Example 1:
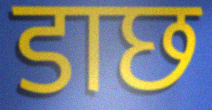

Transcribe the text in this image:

डाछ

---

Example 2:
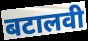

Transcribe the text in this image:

बटालवी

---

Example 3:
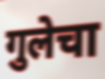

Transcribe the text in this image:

गुलेचा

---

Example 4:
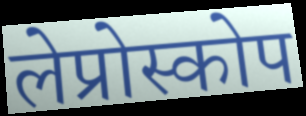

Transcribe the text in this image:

लेप्रोस्कोप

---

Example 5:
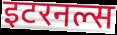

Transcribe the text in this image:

इटरनल्स